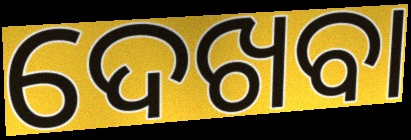
ଦେଖବା